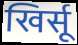
खिर्सू